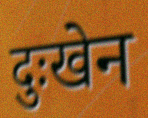
दुःखेन